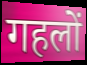
गहलों